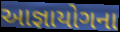
આજ્ઞાયોગના